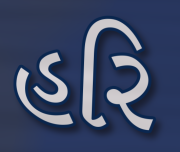
હરિ